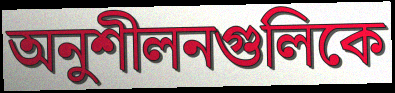
অনুশীলনগুলিকে